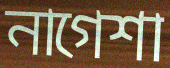
নাগেশা